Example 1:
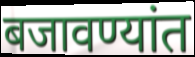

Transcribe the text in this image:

बजावण्यांत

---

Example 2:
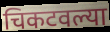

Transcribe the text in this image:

चिकटवल्या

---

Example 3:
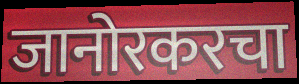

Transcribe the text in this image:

जानोरकरचा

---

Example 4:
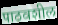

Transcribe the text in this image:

पाठवशील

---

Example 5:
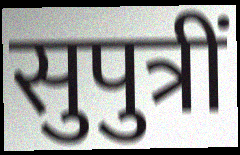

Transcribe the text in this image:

सुपुत्रीं